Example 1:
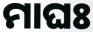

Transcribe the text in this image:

ମାଘଃ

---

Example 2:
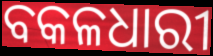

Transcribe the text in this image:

ବକଳଧାରୀ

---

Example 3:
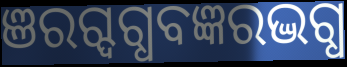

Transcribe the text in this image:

ଞରଗ୍ଦଗ୍ଧବଜ୍ଞରଦ୍ଭଗ୍ଧ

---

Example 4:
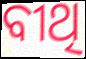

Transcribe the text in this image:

ବୀଥି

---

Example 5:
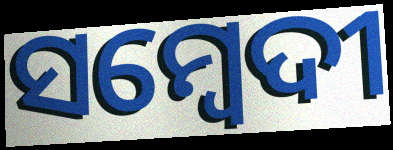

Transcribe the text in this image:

ସମ୍ବେଦୀ